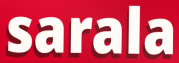
sarala